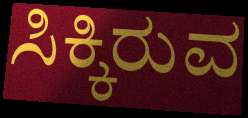
ಸಿಕ್ಕಿರುವ